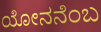
ಯೋನನೆಂಬ